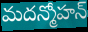
మదన్మోహన్